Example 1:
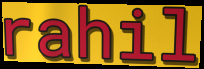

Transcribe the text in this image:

rahil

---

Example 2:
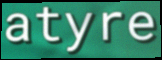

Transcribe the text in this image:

atyre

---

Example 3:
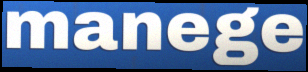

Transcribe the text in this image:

manege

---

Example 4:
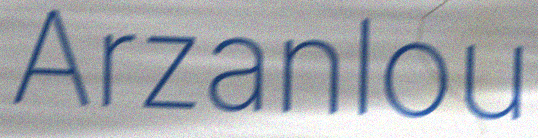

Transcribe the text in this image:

Arzanlou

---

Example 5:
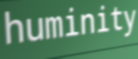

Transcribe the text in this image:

huminity